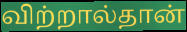
விற்றால்தான்